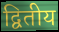
द्वितीय